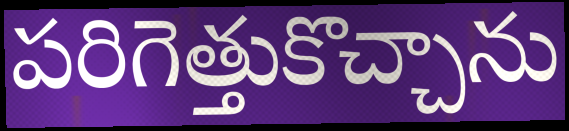
పరిగెత్తుకొచ్చాను